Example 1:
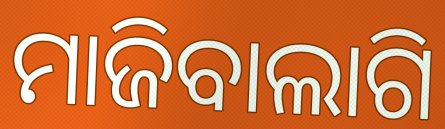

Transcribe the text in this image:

ମାଜିବାଲାଗି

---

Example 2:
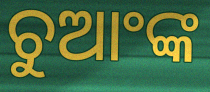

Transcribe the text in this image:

ଚୁଆଂଙ୍କ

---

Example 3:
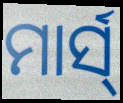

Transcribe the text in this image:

ମାର୍ସ୍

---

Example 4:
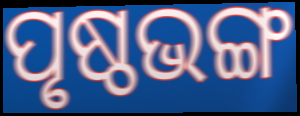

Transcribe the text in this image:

ପୃଷ୍ଠଭଙ୍ଗ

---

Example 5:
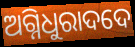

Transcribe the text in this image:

ଅଗ୍ନିଧୁରାଦଦେ